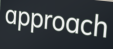
approach